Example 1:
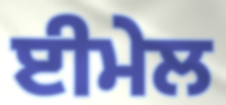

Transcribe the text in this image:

ਈਮੇਲ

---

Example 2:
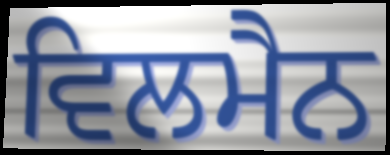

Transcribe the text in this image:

ਵਿਲਮੈਨ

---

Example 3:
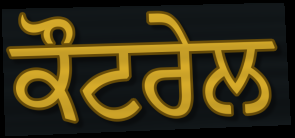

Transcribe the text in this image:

ਕੌਟਰੇਲ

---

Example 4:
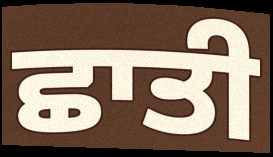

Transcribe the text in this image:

ਛਾਤੀ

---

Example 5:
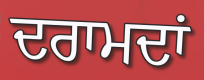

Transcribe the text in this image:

ਦਰਾਮਦਾਂ